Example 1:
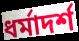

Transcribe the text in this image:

ধর্মাদর্শ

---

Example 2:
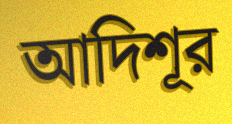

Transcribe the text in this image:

আদিশূর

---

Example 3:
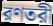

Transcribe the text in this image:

রণতরী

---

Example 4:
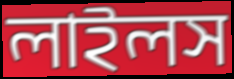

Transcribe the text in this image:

লাইলস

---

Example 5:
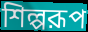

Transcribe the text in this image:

শিল্পরূপ